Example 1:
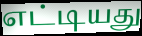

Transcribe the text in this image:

எட்டியது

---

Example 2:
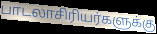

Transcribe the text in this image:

பாடலாசிரியர்களுக்கு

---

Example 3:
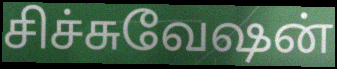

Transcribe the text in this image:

சிச்சுவேஷன்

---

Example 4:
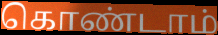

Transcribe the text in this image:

கொண்டாம்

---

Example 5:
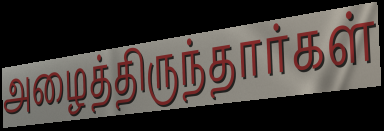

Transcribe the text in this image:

அழைத்திருந்தார்கள்